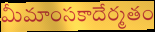
మీమాంసకాదేర్మతం